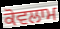
ਕੋਵਲਾਮ